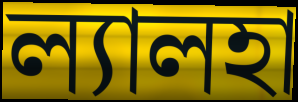
ল্যালহা